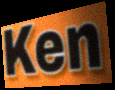
Ken